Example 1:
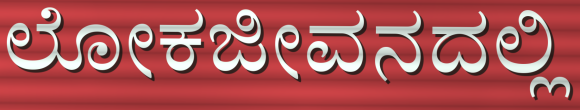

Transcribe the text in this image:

ಲೋಕಜೀವನದಲ್ಲಿ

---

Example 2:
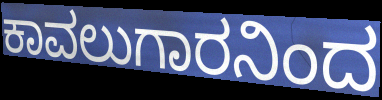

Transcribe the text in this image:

ಕಾವಲುಗಾರನಿಂದ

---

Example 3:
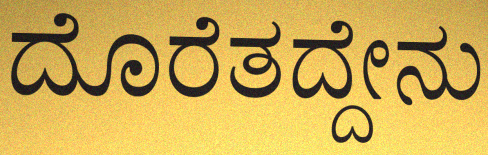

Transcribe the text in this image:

ದೊರೆತದ್ದೇನು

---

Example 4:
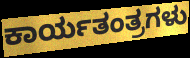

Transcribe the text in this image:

ಕಾರ್ಯತಂತ್ರಗಳು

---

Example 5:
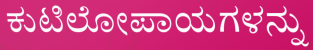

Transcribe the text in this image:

ಕುಟಿಲೋಪಾಯಗಳನ್ನು